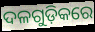
ଦଳଗୁଡ଼ିକରେ